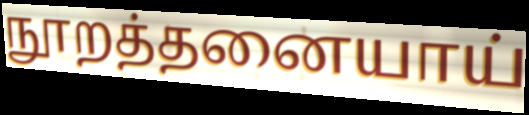
நூறத்தனையாய்